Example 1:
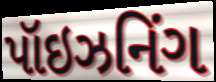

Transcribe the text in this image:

પૉઇઝનિંગ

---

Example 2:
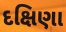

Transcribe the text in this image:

દક્ષિણા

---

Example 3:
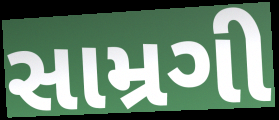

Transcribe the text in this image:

સામ્રગી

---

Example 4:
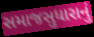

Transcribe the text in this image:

સમાજસુધારાનું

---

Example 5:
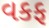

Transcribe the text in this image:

વકફ